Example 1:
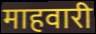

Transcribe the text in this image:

माहवारी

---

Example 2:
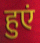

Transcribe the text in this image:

हुएं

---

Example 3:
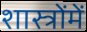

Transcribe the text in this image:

शास्त्रोंमें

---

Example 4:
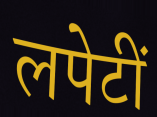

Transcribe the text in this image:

लपेटीं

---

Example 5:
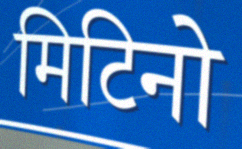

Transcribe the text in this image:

मिटिनो